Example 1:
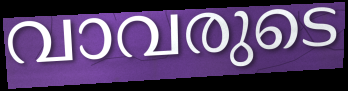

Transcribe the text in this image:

വാവരുടെ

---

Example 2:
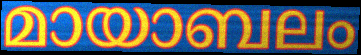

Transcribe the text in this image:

മായാബലം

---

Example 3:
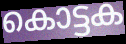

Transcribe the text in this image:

കൊട്ടക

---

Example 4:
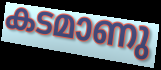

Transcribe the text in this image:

കടമാണു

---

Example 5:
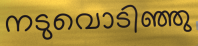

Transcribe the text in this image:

നടുവൊടിഞ്ഞു